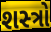
શસ્‍ત્રો